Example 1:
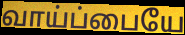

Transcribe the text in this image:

வாய்ப்பையே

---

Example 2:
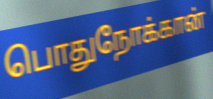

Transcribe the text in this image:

பொதுநோக்கான்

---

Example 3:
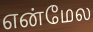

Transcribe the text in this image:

என்மேல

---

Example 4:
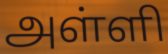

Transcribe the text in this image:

அள்ளி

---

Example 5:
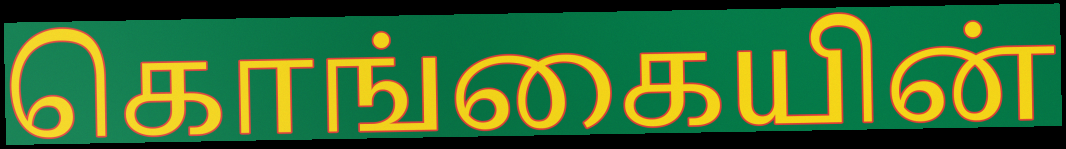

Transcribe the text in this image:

கொங்கையின்